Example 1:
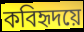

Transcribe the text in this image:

কবিহৃদয়ে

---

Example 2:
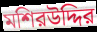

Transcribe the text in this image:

মশিরউদ্দির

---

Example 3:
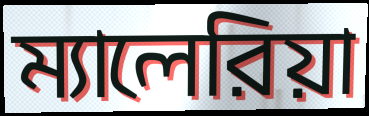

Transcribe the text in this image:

ম্যালেরিয়া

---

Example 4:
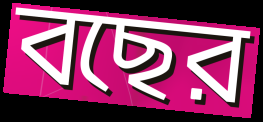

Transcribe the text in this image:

বছের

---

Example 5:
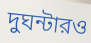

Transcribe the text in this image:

দুঘন্টারও